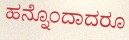
ಹನ್ನೊಂದಾದರೂ